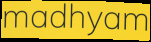
madhyam